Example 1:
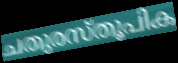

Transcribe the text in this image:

ചതുരസ്തൂപിക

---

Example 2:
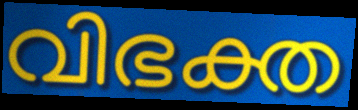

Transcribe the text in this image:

വിഭക്ത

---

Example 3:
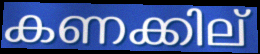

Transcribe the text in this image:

കണക്കില്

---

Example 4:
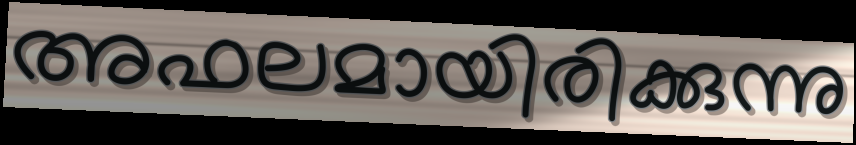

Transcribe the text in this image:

അഫലമായിരിക്കുന്നു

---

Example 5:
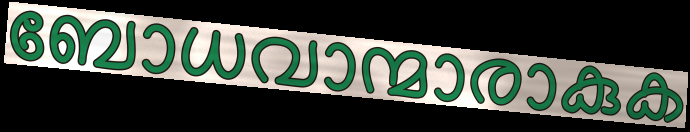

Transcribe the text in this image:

ബോധവാന്മാരാകുക